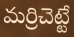
మర్రిచెట్టే